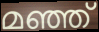
മഞ്ഞ്